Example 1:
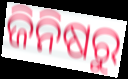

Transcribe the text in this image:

ଜିନିଷରୁ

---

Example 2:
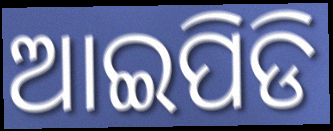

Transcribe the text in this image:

ଆଇପିଡି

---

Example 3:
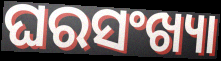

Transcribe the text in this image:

ଘରସଂଖ୍ୟା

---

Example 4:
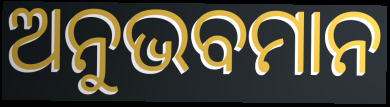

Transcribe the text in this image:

ଅନୁଭବମାନ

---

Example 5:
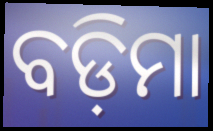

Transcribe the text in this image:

ବଡ଼ିମା